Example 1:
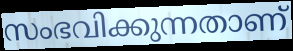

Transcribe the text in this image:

സംഭവിക്കുന്നതാണ്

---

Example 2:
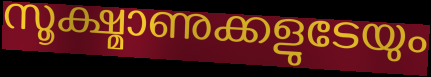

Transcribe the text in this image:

സൂക്ഷ്മാണുക്കളുടേയും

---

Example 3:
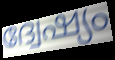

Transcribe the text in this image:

ദ്വേഷ്യം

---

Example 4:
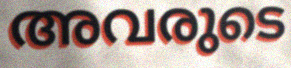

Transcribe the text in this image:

അവരുടെ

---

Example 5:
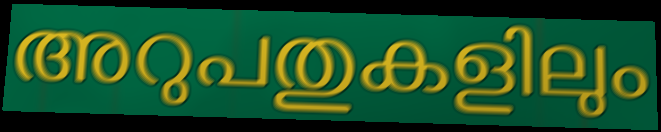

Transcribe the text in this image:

അറുപതുകളിലും